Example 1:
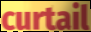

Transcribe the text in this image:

curtail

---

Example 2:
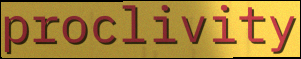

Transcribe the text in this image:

proclivity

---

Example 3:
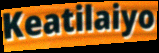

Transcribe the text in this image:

Keatilaiyo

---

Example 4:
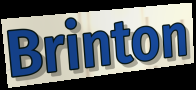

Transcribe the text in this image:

Brinton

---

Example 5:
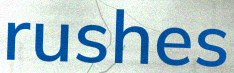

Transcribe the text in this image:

rushes